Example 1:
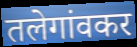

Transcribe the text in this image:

तलेगांवकर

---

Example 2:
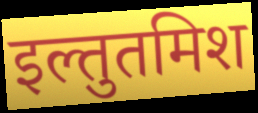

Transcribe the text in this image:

इल्तुतमिश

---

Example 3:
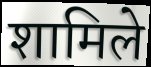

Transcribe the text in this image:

शामिले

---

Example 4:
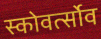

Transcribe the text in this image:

स्कोवर्त्सोव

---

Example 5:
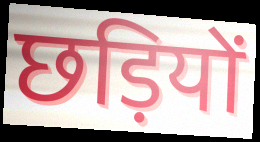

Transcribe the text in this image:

छड़ियों